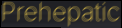
Prehepatic